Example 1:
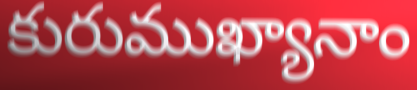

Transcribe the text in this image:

కురుముఖ్యానాం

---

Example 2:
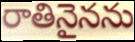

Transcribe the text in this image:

రాతినైనను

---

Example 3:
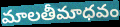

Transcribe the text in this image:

మాలతీమాధవం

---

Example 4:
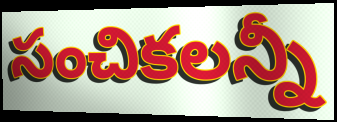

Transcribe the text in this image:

సంచికలన్నీ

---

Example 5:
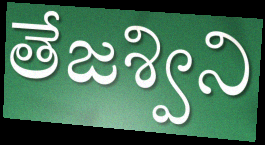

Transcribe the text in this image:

తేజశ్విని